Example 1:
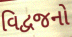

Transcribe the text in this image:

વિદ્વજનો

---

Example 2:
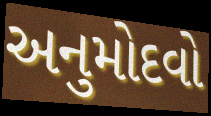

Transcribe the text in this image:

અનુમોદવો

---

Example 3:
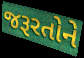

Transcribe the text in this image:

જરૂરતોને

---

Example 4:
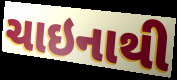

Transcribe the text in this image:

ચાઇનાથી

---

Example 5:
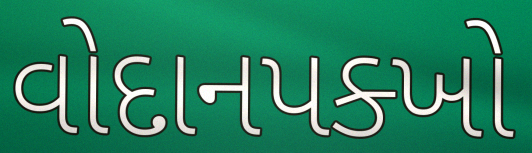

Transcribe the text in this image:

વોદાનપક્ખો